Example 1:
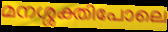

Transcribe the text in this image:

മനശ്ശക്തിപോലെ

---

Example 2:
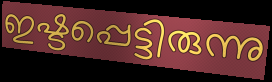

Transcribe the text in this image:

ഇഷ്ടപ്പെട്ടിരുന്നു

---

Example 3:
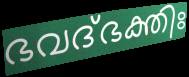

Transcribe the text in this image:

ഭവദ്ഭക്തിഃ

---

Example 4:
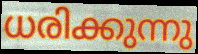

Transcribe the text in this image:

ധരിക്കുന്നു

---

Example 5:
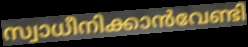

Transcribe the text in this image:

സ്വാധീനിക്കാൻവേണ്ടി